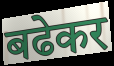
बढेकर